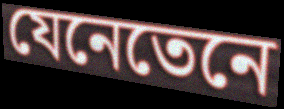
যেনেতেনে